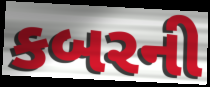
કબરની